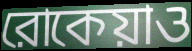
রোকেয়াও